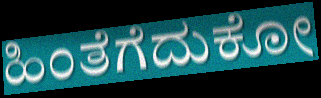
ಹಿಂತೆಗೆದುಕೋ